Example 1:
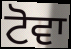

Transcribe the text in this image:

ਟੋਵਾ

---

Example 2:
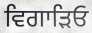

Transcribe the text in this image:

ਵਿਗਾੜਿਓ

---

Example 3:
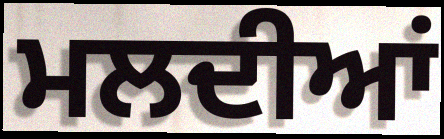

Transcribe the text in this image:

ਮਲਦੀਆਂ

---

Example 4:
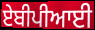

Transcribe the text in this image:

ਏਬੀਪੀਆਈ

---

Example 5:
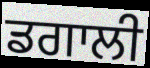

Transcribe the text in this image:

ਡਗਾਲੀ